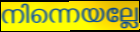
നിന്നെയല്ലേ